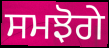
ਸਮਝੋਗੇ